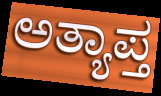
ಅತ್ಯಾಪ್ತ